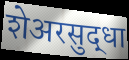
शेअरसुद्धा